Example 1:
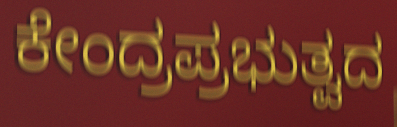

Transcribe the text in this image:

ಕೇಂದ್ರಪ್ರಭುತ್ವದ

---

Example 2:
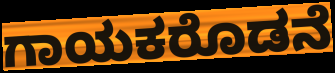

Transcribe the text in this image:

ಗಾಯಕರೊಡನೆ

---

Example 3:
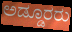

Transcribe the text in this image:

ಅಡ್ಡೂರರು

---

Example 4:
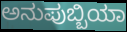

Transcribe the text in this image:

ಅನುಪುಬ್ಬಿಯಾ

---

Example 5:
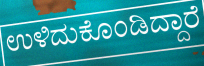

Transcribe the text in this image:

ಉಳಿದುಕೊಂಡಿದ್ದಾರೆ